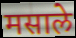
मसाले